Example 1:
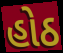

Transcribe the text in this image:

હોઠ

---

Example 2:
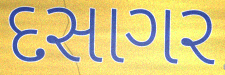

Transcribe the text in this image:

દસાગર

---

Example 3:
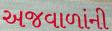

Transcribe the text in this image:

અજવાળાંની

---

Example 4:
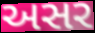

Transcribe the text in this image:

અસર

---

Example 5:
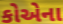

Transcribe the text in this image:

કોએના